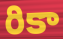
రికా